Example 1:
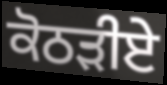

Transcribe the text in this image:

ਕੋਠੜੀਏ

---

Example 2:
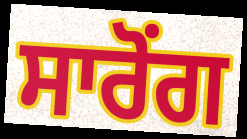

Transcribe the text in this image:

ਸਾਰੋਂਗ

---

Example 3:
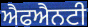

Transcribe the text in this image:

ਐਫਐਨਟੀ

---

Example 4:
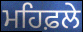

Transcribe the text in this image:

ਮਹਿਫ਼ਲੇ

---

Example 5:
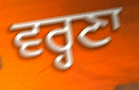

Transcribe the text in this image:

ਵਰ੍ਹਣਾ